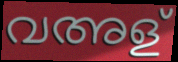
വഅള്